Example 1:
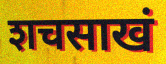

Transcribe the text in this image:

शचसाखं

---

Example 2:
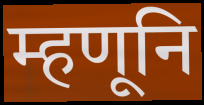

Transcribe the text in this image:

म्हणूनि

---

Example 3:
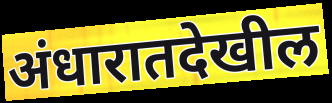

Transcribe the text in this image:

अंधारातदेखील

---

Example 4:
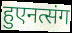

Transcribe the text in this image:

हुएनत्संग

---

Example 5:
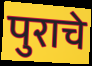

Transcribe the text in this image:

पुराचे